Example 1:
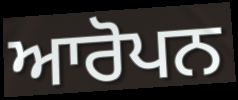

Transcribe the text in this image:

ਆਰੋਪਨ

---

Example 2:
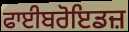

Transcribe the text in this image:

ਫਾਈਬਰੋਇਡਜ਼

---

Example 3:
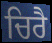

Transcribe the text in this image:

ਚਿਰੈ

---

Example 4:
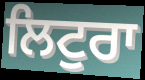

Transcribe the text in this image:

ਲਿਟੁਰਾ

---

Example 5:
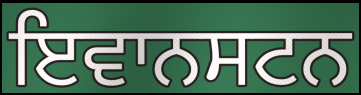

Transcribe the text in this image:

ਇਵਾਨਸਟਨ